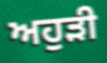
ਅਹੁੜੀ